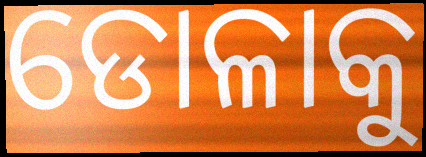
ଡୋଳାକୁ